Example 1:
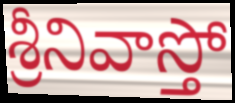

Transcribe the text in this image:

శ్రీనివాస్తో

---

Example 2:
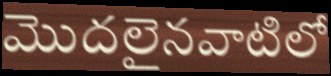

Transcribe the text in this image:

మొదలైనవాటిలో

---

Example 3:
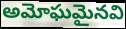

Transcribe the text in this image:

అమోఘమైనవి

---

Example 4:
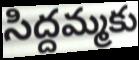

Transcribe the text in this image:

సిద్దమ్మకు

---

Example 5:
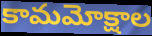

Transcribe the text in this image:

కామమోక్షాల